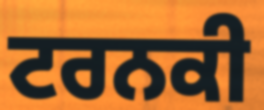
ਟਰਨਕੀ